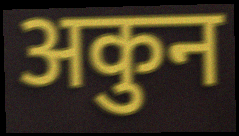
अकुन